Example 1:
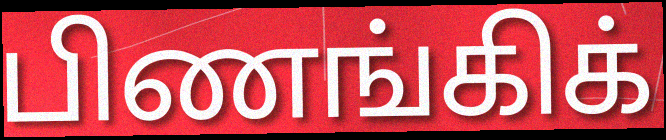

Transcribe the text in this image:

பிணங்கிக்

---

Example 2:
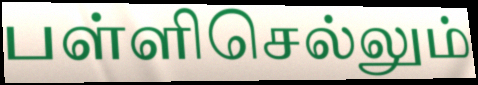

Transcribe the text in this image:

பள்ளிசெல்லும்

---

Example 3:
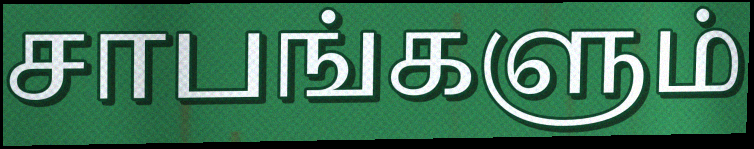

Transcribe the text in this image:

சாபங்களும்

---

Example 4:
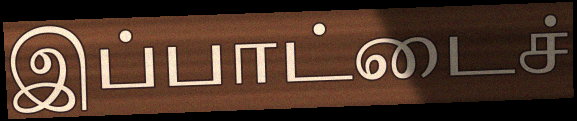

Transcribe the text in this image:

இப்பாட்டைச்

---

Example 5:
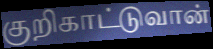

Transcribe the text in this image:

குறிகாட்டுவான்